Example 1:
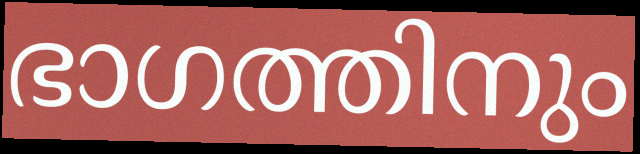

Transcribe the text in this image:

ഭാഗത്തിനും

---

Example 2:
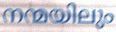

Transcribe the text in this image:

നന്മയിലും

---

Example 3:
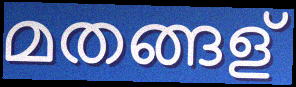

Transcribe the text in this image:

മതങ്ങള്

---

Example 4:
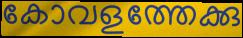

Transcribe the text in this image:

കോവളത്തേക്കു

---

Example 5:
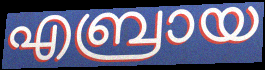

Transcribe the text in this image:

എബ്രായ